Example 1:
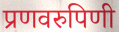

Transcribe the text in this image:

प्रणवरुपिणी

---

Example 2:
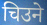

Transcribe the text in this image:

चिउने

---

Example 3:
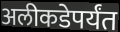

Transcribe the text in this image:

अलीकडेपर्यंत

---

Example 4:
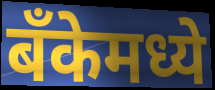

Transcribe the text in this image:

बँकेमध्ये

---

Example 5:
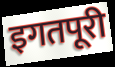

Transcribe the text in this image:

इगतपूरी